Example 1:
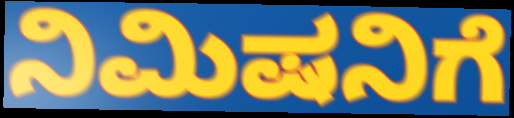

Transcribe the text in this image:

ನಿಮಿಷನಿಗೆ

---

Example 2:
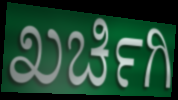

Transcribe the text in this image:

ಖರ್ಚಿಗಿ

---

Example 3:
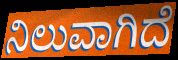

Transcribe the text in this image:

ನಿಲುವಾಗಿದೆ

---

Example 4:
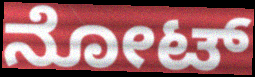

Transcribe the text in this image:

ನೋಟ್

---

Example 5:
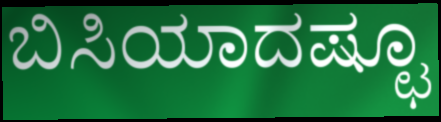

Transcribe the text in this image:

ಬಿಸಿಯಾದಷ್ಟೂ